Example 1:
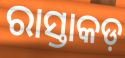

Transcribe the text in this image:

ରାସ୍ତାକଡ଼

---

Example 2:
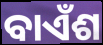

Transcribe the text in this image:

ବାଏଁଶ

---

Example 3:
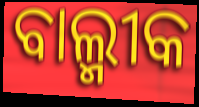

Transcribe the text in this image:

ବାଲ୍ମୀକ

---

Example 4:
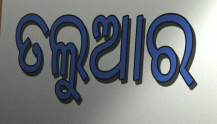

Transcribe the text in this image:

ତଲୁଆର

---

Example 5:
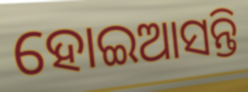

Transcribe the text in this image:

ହୋଇଆସନ୍ତି